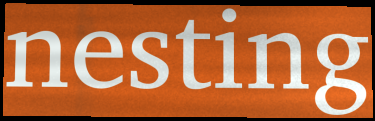
nesting